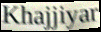
Khajjiyar